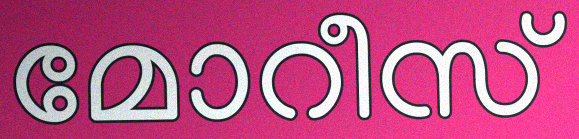
മോറീസ്